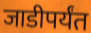
जाडीपर्यंत